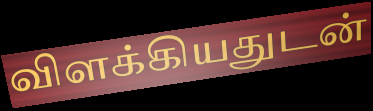
விளக்கியதுடன்